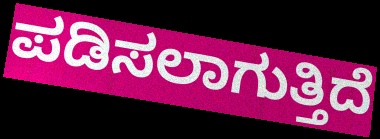
ಪಡಿಸಲಾಗುತ್ತಿದೆ